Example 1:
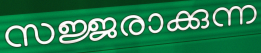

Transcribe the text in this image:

സജ്ജരാക്കുന്ന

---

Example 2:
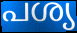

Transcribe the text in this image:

പശ്യ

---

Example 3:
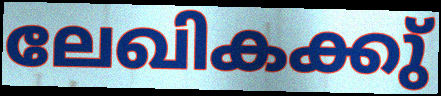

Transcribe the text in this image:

ലേഖികക്കു്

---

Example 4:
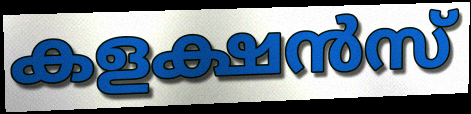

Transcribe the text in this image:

കളക്ഷൻസ്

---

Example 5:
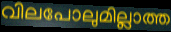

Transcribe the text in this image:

വിലപോലുമില്ലാത്ത